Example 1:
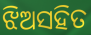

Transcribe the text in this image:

ଝିଅସହିତ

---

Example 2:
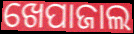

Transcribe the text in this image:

ଖେପାଜାଲ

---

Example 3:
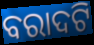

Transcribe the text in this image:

ବରାଦଟି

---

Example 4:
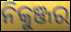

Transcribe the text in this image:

ନିକୁଞ୍ଜର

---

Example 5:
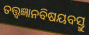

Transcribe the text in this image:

ତତ୍ତ୍ୱଜ୍ଞାନବିଷୟବସ୍ତୁ